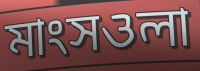
মাংসওলা